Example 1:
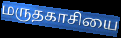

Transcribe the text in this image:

மருதகாசியை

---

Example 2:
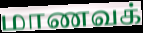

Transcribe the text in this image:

மாணவக்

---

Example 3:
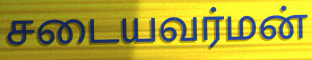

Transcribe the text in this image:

சடையவர்மன்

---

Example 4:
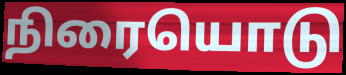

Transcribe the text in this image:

நிரையொடு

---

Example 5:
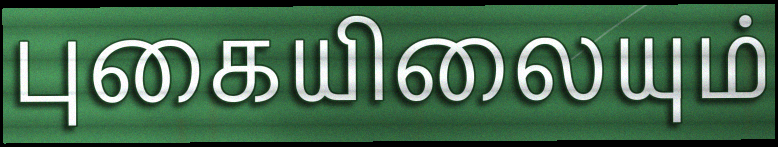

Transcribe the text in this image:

புகையிலையும்